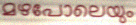
മഴപോലെയും